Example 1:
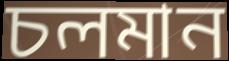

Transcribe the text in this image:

চলমান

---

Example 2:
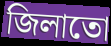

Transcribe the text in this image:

জিলাতো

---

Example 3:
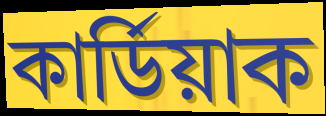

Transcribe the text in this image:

কাৰ্ডিয়াক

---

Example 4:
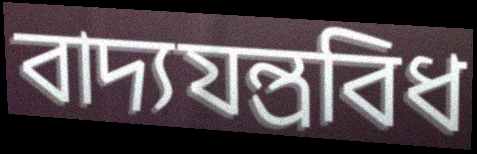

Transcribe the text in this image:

বাদ্যযন্ত্ৰবিধ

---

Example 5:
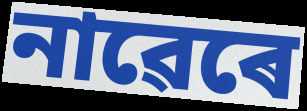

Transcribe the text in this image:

নাৱেৰে